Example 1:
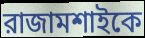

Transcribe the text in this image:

রাজামশাইকে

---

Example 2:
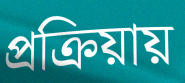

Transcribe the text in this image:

প্রক্রিয়ায়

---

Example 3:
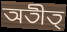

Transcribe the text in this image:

অতীত্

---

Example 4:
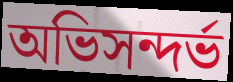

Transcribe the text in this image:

অভিসন্দর্ভ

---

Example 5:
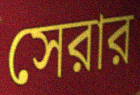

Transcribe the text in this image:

সেরার